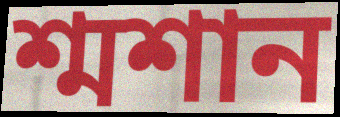
শ্মশান